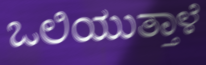
ಒಲಿಯುತ್ತಾಳೆ